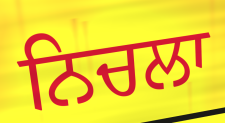
ਨਿਚਲਾ